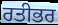
ਰਤੀਭਰ